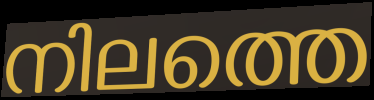
നിലത്തെ